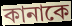
কানাকে